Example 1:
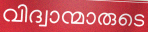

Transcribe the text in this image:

വിദ്വാന്മാരുടെ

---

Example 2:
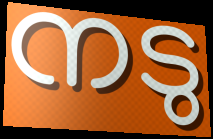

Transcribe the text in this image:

നടു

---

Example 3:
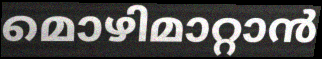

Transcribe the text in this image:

മൊഴിമാറ്റാൻ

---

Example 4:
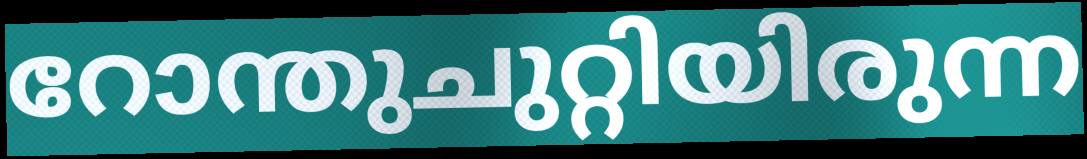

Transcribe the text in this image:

റോന്തുചുറ്റിയിരുന്ന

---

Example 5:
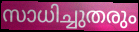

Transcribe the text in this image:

സാധിച്ചുതരും